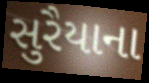
સુરૈયાના